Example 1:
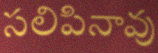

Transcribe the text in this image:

సలిపినావు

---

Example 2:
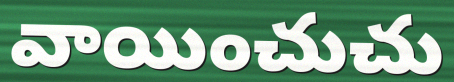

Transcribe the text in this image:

వాయించుచు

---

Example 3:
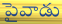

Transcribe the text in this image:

పైవాడు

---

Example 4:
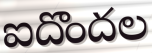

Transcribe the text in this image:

ఐదొందల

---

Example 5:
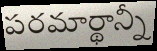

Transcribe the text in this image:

పరమార్థాన్నీ